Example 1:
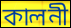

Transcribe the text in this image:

কালনী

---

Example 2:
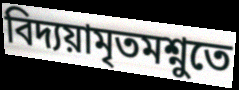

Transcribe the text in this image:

বিদ্যয়ামৃতমশ্নুতে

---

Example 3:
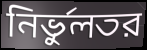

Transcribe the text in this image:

নির্ভুলতর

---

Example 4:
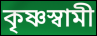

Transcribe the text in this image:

কৃষ্ণস্বামী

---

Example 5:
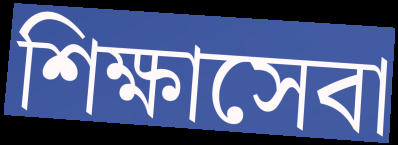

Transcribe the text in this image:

শিক্ষাসেবা